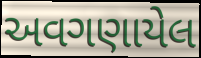
અવગણાયેલ